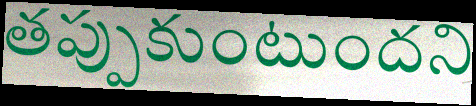
తప్పుకుంటుందని